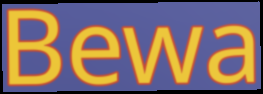
Bewa